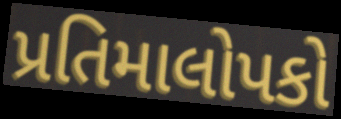
પ્રતિમાલોપકો